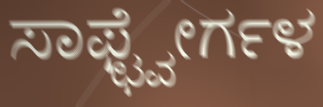
ಸಾಫ್ಟ್ವೇರ್ಗಳ